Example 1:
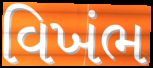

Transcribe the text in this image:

વિખંભ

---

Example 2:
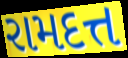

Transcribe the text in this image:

રામદત્ત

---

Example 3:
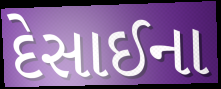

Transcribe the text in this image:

દેસાઈના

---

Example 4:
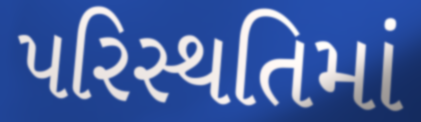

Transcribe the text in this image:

પરિસ્થતિમાં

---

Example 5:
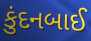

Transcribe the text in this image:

કુંદનબાઈ